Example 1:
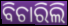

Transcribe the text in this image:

ବିଚାରିଲି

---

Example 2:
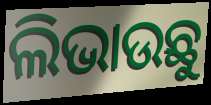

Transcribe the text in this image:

ଲିଭାଉଛୁ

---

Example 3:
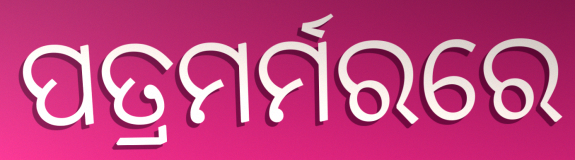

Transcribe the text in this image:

ପତ୍ରମର୍ମରରେ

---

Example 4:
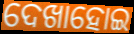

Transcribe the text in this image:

ଦେଖାହୋଇ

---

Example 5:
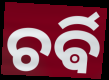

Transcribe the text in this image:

ଚର୍ଵି